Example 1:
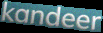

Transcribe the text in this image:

kandeer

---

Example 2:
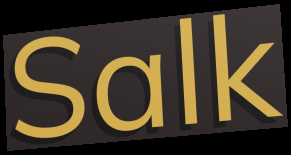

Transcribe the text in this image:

Salk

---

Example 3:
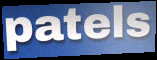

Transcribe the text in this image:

patels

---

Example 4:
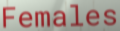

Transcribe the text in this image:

Females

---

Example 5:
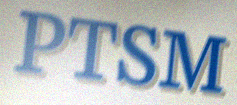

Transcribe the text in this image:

PTSM